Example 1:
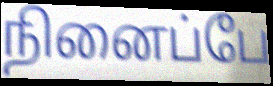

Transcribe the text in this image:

நினைப்பே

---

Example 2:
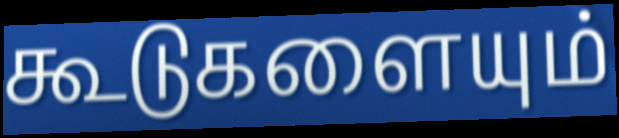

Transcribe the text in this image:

கூடுகளையும்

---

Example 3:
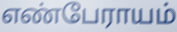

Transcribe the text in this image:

எண்பேராயம்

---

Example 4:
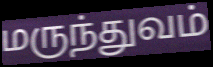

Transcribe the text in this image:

மருந்துவம்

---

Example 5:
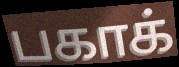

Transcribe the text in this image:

பகாக்